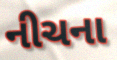
નીચના